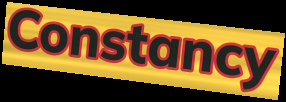
Constancy